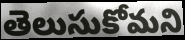
తెలుసుకోమని